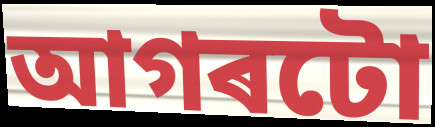
আগৰটো